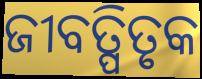
ଜୀବତ୍ପିତୃକ